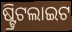
ଷ୍ଟ୍ରିଟଲାଇଟ